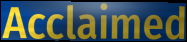
Acclaimed